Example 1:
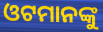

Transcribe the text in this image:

ଓଟମାନଙ୍କୁ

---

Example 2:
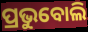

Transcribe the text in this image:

ପ୍ରଭୁବୋଲି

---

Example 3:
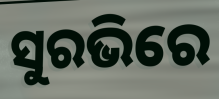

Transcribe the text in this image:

ସୁରଭିରେ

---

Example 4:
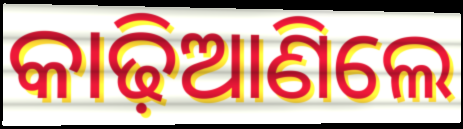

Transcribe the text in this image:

କାଢ଼ିଆଣିଲେ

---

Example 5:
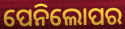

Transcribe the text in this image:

ପେନିଲୋପର